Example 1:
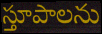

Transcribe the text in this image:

స్తూపాలను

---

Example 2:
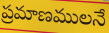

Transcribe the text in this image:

ప్రమాణములనే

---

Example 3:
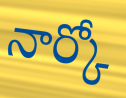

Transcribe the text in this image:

నార్కో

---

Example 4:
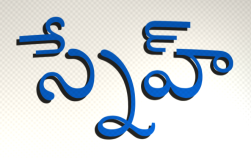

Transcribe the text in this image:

స్నేహ్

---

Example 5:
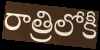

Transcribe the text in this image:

రాత్రిలోకీ